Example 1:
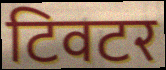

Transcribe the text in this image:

टिवटर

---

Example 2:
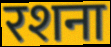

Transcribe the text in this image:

रशना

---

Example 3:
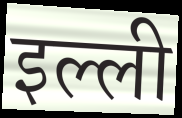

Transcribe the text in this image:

इल्ली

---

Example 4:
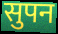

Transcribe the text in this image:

सुपन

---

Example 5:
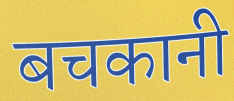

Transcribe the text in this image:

बचकानी